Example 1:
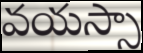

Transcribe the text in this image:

వయస్సా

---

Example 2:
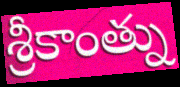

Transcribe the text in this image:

శ్రీకాంత్ను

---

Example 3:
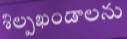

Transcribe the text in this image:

శిల్పఖండాలను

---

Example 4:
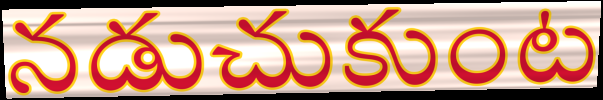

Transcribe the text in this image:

నడుచుకుంట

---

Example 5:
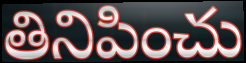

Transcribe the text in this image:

తినిపించు